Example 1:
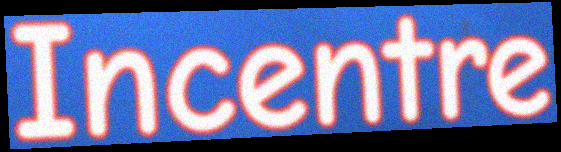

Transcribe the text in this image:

Incentre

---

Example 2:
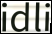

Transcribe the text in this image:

idli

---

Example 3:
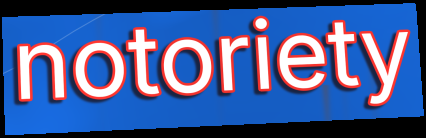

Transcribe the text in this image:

notoriety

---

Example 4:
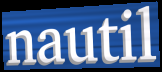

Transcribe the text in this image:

nautil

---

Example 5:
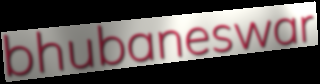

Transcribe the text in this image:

bhubaneswar